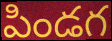
పిండగ